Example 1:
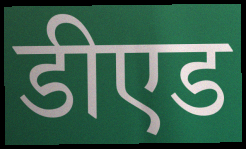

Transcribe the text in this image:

डीएड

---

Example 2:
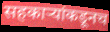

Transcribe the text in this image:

सहकार्‍यांकडूनच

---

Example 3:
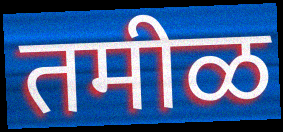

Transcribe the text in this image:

तमीळ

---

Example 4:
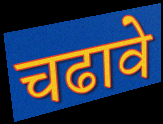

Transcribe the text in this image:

चढावे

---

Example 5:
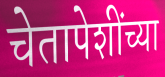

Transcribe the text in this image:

चेतापेशींच्या